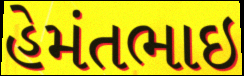
હેમંતભાઇ